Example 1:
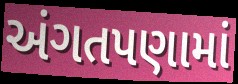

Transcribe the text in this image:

અંગતપણામાં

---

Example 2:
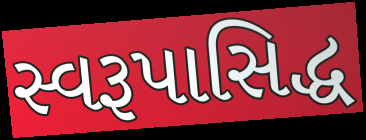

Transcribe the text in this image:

સ્વરૂપાસિદ્ધ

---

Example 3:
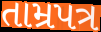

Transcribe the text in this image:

તામ્રપત્ર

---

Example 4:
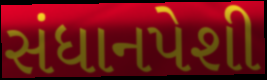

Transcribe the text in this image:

સંધાનપેશી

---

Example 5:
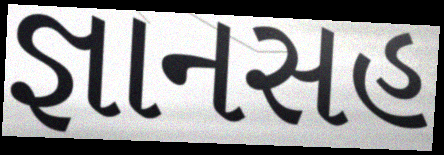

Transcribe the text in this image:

જ્ઞાનસહ